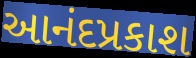
આનંદપ્રકાશ